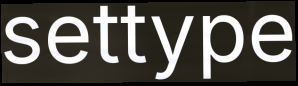
settype